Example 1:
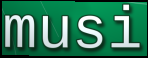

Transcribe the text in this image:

musi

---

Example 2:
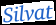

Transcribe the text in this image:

Silvat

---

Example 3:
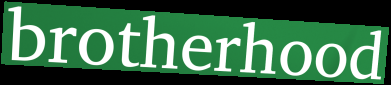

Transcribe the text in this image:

brotherhood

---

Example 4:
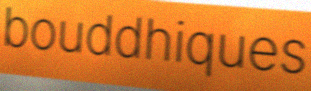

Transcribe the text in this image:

bouddhiques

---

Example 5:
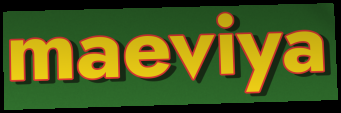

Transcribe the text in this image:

maeviya